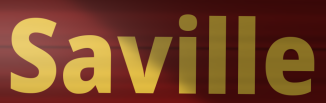
Saville